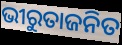
ଭୀରୁତାଜନିତ